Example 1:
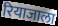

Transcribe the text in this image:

रियाजाला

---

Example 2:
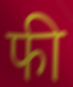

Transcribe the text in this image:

फी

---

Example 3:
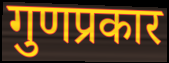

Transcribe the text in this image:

गुणप्रकार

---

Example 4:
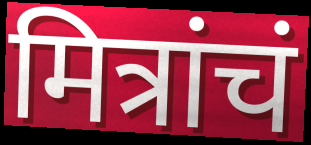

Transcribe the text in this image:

मित्रांचं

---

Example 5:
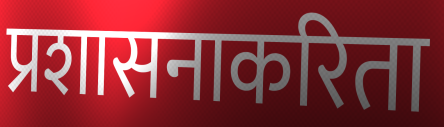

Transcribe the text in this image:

प्रशासनाकरिता